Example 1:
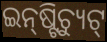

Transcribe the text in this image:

ଇନ୍‌ଷ୍ଟିଚ୍ୟୁଟ୍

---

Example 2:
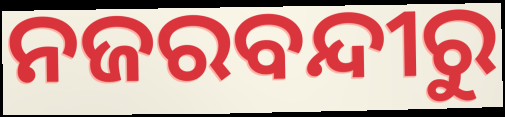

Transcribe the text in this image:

ନଜରବନ୍ଦୀରୁ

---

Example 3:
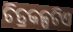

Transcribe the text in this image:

ଚିତ୍ରକଳ୍ପଟିଏ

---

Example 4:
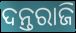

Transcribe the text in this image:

ଦନ୍ତରାଜି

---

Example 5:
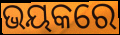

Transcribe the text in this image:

ଭୟକରେ